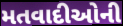
મતવાદીઓની